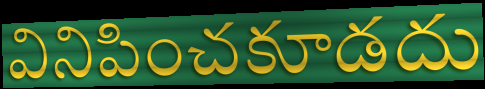
వినిపించకూడదు